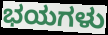
ಭಯಗಳು